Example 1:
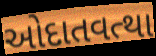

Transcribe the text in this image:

ઓદાતવત્થા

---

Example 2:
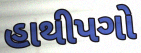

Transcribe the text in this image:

હાથીપગો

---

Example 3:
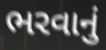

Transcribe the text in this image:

ભરવાનું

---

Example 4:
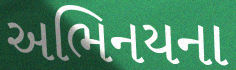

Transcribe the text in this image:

અભિનયના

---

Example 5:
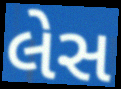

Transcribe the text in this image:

લેસ